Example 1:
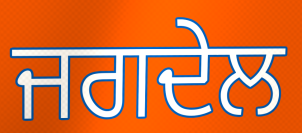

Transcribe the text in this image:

ਜਗਦੇਲ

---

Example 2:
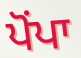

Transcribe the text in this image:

ਪੋਂਪਾ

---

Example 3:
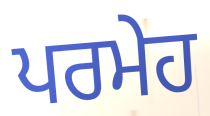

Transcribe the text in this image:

ਪਰਮੇਹ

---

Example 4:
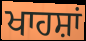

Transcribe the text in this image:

ਖਾਹਸ਼ਾਂ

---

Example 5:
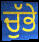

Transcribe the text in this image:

ਚੁੱਭੇ